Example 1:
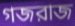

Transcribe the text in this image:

গজরাজ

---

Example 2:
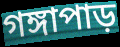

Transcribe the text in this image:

গঙ্গাপাড়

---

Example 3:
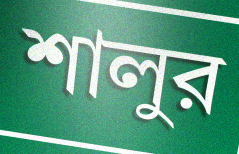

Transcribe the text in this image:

শালুর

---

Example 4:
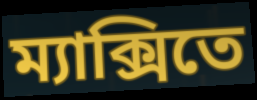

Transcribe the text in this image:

ম্যাক্সিতে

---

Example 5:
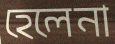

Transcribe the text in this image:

হেলেনা